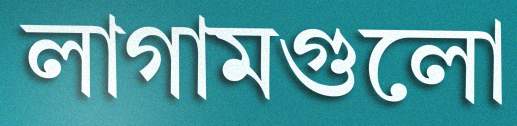
লাগামগুলো